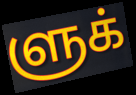
ளுக்